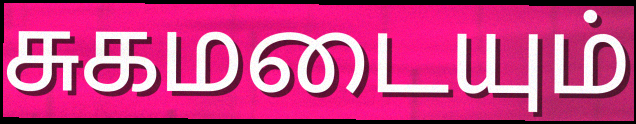
சுகமடையும்